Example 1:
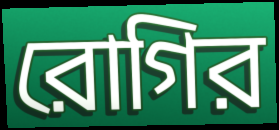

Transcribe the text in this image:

রোগির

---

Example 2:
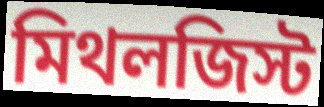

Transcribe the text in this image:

মিথলজিস্ট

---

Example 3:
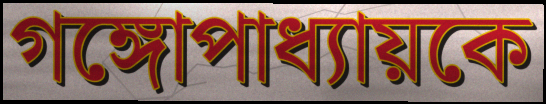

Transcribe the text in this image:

গঙ্গোপাধ্যায়কে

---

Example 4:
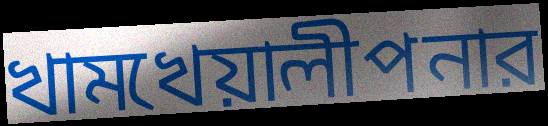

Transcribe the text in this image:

খামখেয়ালীপনার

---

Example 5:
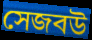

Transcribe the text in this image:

সেজবউ